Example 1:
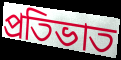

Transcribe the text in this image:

প্ৰতিভাত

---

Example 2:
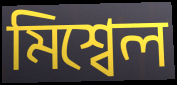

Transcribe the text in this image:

মিশ্বেল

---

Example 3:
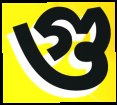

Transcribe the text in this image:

গু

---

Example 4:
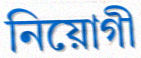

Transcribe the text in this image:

নিয়োগী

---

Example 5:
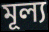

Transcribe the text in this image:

মূল্য